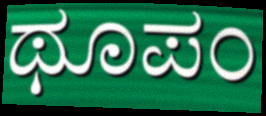
ಥೂಪಂ